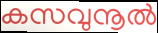
കസവുനൂൽ